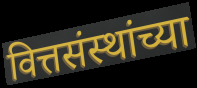
वित्तसंस्थांच्या